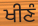
ਖੀਣੰ